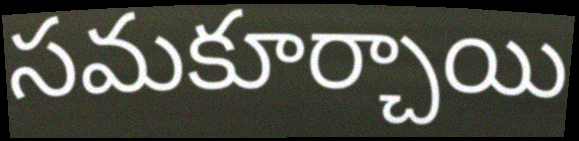
సమకూర్చాయి